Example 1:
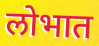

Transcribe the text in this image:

लोभात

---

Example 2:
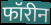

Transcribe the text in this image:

फॉरीन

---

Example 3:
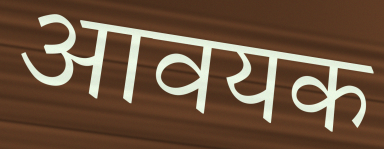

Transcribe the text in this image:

आवयक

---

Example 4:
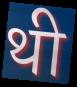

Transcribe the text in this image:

थी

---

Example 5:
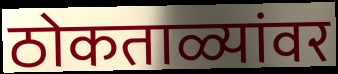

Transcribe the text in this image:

ठोकताळ्यांवर